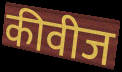
कीवीज